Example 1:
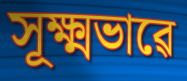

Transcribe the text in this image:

সূক্ষ্মভাৱে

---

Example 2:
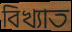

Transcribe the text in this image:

বিখ্যাত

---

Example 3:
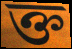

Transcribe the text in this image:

ক্ত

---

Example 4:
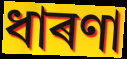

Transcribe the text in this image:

ধাৰণা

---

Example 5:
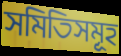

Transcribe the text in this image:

সমিতিসমূহ